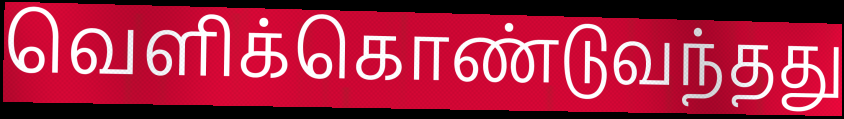
வெளிக்கொண்டுவந்தது